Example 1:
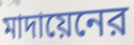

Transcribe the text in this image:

মাদায়েনের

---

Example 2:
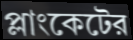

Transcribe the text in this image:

প্লাংকেটের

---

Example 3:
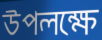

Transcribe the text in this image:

উপলক্ষে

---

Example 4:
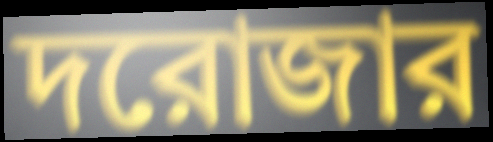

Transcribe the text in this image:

দরোজার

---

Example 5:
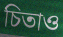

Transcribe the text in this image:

চিতাও